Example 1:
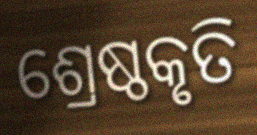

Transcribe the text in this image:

ଶ୍ରେଷ୍ଠକୃତି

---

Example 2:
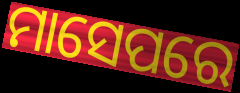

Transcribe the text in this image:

ମାସେପରେ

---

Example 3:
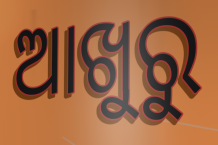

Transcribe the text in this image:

ଆଖୁରୁ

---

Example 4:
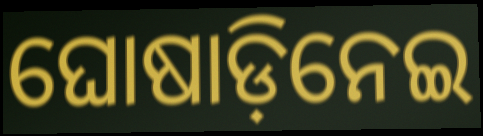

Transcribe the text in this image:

ଘୋଷାଡ଼ିନେଇ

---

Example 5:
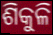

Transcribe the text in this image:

ଶିକୁଳି